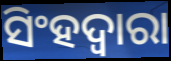
ସିଂହଦ୍ୱାରା